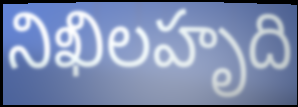
నిఖిలహృది